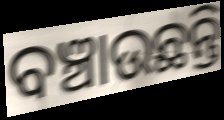
ବଞ୍ଚାଉଛନ୍ତି